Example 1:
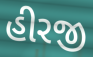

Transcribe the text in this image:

હીરજી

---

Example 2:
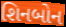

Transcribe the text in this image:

શિનબોન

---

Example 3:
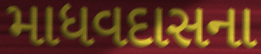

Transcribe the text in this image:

માધવદાસના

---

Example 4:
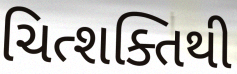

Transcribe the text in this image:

ચિત્શક્તિથી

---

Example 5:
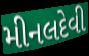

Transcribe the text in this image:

મીનલદેવી